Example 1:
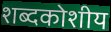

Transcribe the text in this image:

शब्दकोशीय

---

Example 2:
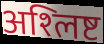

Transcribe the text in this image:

अश्लिष्ट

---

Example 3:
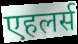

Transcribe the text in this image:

एहलर्स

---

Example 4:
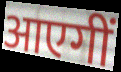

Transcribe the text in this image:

आएगीं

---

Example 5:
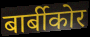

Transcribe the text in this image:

बार्बीकोर